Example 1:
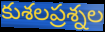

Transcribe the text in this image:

కుశలప్రశ్నల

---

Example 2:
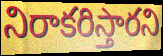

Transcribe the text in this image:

నిరాకరిస్తారని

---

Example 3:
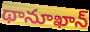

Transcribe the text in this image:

థానూఖాన్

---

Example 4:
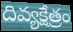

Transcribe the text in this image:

దివ్యక్షేత్రం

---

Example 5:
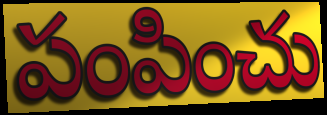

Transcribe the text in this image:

పంపించు